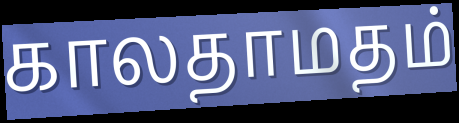
காலதாமதம்